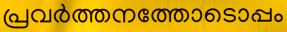
പ്രവർത്തനത്തോടൊപ്പം